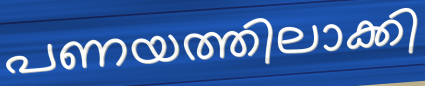
പണയത്തിലാക്കി